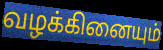
வழக்கினையும்